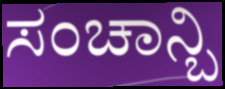
ಸಂಚಾನ್ಬಿ